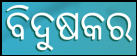
ବିଦୁଷକର